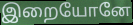
இறையோனே